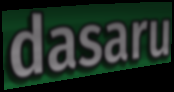
dasaru